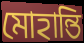
মোহান্তি